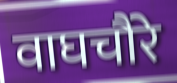
वाघचौरे